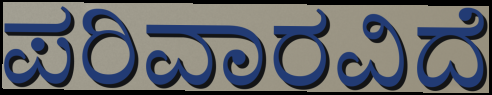
ಪರಿವಾರವಿದೆ